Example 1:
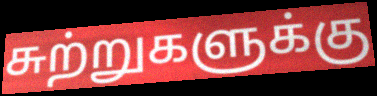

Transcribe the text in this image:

சுற்றுகளுக்கு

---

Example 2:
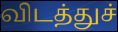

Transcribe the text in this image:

விடத்துச்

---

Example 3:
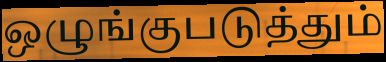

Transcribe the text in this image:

ஒழுங்குபடுத்தும்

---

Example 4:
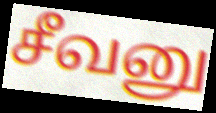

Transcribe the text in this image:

சீவனு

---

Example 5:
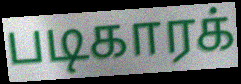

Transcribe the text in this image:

படிகாரக்